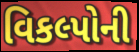
વિકલ્પોની